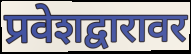
प्रवेशद्वारावर